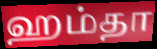
ஹம்தா